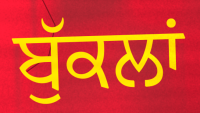
ਬੁੱਕਲਾਂ